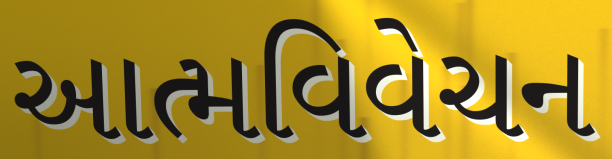
આત્મવિવેચન